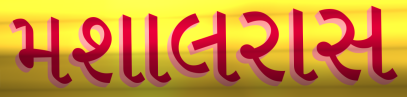
મશાલરાસ